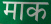
माक